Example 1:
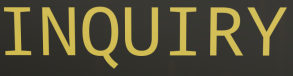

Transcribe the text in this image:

INQUIRY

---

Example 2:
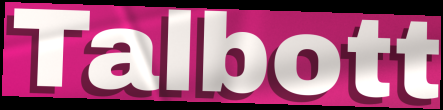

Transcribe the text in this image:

Talbott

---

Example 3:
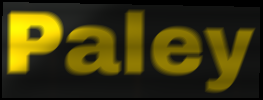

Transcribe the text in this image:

Paley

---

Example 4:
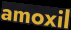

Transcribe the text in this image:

amoxil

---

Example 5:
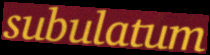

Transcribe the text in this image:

subulatum